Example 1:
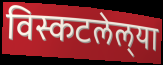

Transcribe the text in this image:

विस्कटलेल्या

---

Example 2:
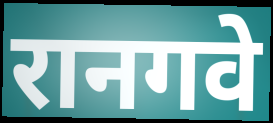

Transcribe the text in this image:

रानगवे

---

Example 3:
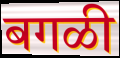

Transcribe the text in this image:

बगळी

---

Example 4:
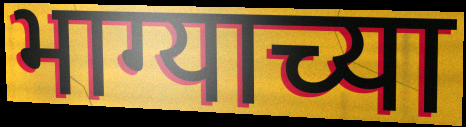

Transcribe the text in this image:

भाग्याच्या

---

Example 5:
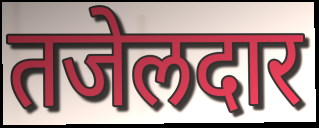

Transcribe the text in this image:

तजेलदार